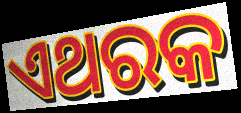
ଏଥରକ